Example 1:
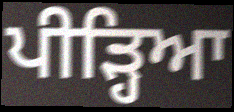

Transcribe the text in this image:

ਪੀੜ੍ਹਿਆ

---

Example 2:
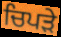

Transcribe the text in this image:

ਚਿਪੜੇ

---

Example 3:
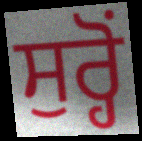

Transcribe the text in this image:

ਸੁਰ੍ਹੋਂ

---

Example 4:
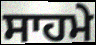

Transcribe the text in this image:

ਸਾਹਮੇ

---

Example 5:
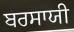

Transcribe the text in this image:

ਬਰਸਾਯੀ